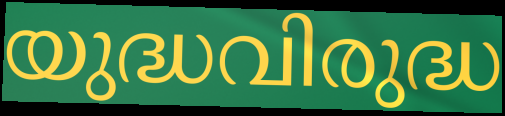
യുദ്ധവിരുദ്ധ